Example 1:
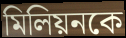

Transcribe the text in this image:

মিলিয়নকে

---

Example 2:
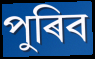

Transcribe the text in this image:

পুৰিব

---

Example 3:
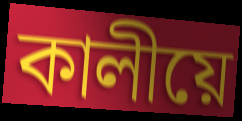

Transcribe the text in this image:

কালীয়ে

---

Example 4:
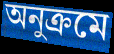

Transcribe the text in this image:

অনুক্ৰমে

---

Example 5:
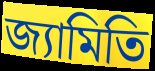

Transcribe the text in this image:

জ্যামিতি